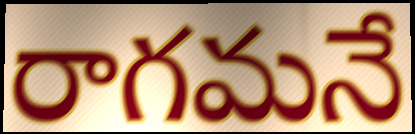
రాగమనే